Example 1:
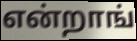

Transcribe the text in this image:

என்றாங்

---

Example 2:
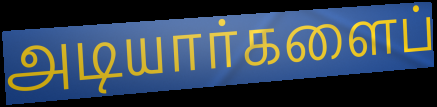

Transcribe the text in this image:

அடியார்களைப்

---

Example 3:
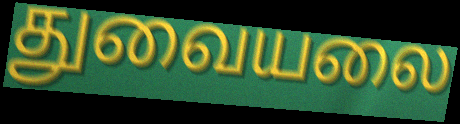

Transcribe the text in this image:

துவையலை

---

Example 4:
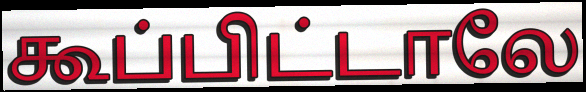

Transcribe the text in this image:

கூப்பிட்டாலே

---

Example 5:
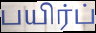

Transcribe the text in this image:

பயிர்ப்